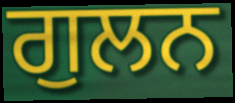
ਗੁਲਨ